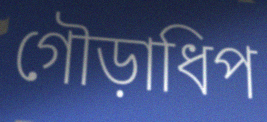
গৌড়াধিপ